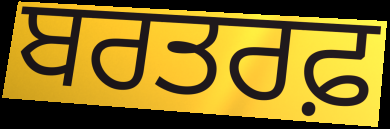
ਬਰਤਰਫ਼